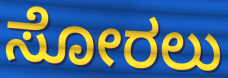
ಸೋರಲು